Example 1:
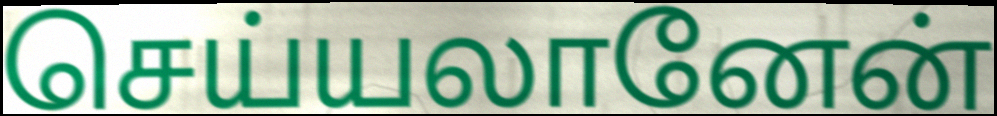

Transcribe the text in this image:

செய்யலானேன்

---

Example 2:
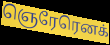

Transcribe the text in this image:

ஞெரேரெனக்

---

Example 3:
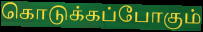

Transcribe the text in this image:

கொடுக்கப்போகும்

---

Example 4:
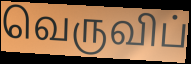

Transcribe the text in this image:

வெருவிப்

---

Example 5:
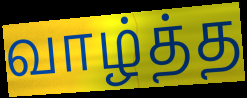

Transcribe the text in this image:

வாழ்த்த